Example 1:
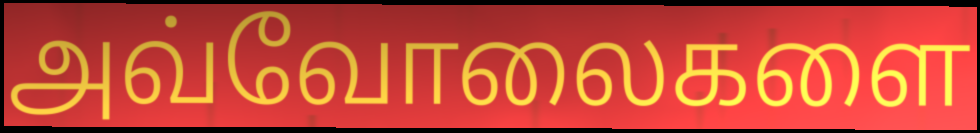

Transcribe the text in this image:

அவ்வோலைகளை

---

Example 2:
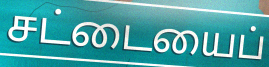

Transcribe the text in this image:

சட்டையைப்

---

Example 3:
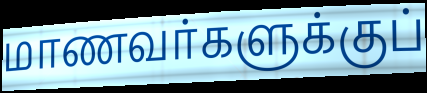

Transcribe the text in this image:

மாணவர்களுக்குப்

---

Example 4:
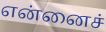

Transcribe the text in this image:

என்னைச்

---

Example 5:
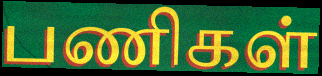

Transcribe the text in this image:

பணிகள்